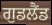
ਗੁਡਲੈਂਡ